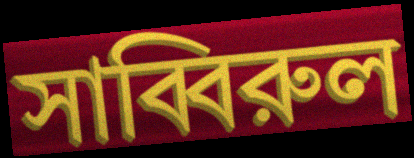
সাব্বিরুল